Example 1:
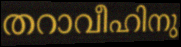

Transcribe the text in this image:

തറാവീഹിനു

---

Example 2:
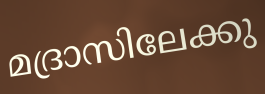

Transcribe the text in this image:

മദ്രാസിലേക്കു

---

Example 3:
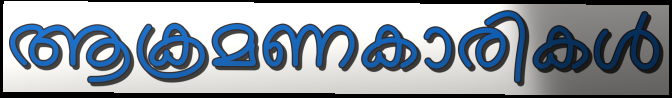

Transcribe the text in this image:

ആക്രമണകാരികൾ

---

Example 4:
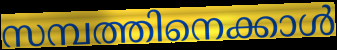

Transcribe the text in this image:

സമ്പത്തിനെക്കാൾ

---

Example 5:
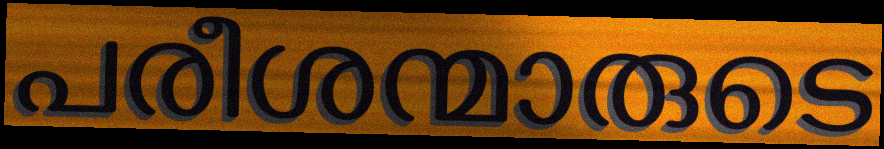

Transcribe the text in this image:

പരീശന്മാരുടെ